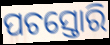
ପଚସ୍ତୋରି